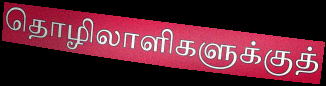
தொழிலாளிகளுக்குத்